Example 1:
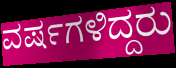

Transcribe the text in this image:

ವರ್ಷಗಳಿದ್ದರು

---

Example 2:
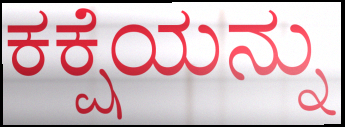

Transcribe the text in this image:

ಕಕ್ಷೆಯನ್ನು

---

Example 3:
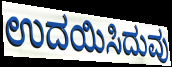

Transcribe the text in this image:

ಉದಯಿಸಿದುವು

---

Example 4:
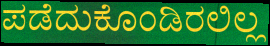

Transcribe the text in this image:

ಪಡೆದುಕೊಂಡಿರಲಿಲ್ಲ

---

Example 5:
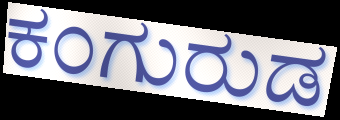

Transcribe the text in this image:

ಕಂಗುರುಡ